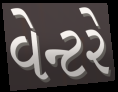
વેન્ટરે